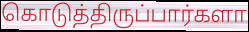
கொடுத்திருப்பார்களா